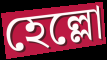
হেল্লো